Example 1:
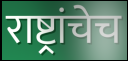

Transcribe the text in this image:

राष्ट्रांचेच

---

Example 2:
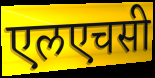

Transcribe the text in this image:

एलएचसी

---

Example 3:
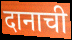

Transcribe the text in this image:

दानाची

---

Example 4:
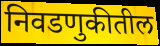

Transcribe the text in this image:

निवडणुकीतील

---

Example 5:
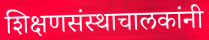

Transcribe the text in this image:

शिक्षणसंस्थाचालकांनी